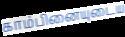
காம்பினையுடைய